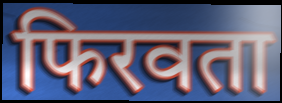
फिरवता